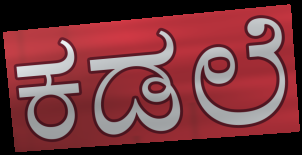
ಕಡಲೆ